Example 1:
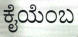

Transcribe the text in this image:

ಕೈಯೆಂಬ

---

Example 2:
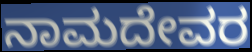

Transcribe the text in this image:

ನಾಮದೇವರ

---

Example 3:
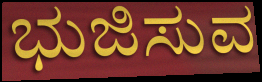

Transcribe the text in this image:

ಭುಜಿಸುವ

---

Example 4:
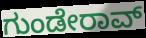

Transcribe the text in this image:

ಗುಂಡೇರಾವ್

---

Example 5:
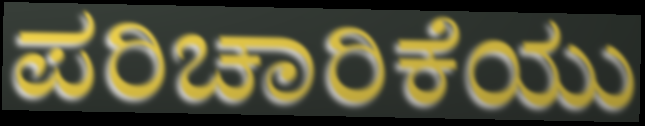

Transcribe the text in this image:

ಪರಿಚಾರಿಕೆಯು